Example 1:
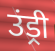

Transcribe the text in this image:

उंड्री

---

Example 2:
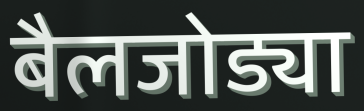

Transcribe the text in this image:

बैलजोड्या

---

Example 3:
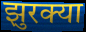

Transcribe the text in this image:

झुरक्या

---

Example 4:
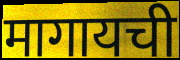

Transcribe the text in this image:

मागायची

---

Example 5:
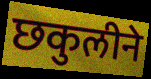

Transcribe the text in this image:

छकुलीने